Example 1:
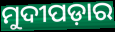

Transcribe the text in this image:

ମୁଦୀପଡ଼ାର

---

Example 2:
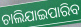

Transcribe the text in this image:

ଚାଲିଯାଇପାରିବ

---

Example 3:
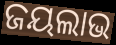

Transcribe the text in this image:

ଜୟଲାଭ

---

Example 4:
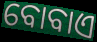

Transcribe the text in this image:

ବୋବାଏ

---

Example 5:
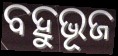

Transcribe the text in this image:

ବହୁଭୂଜ